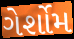
ગેર્શોમ